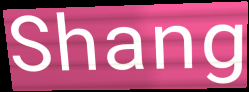
Shang